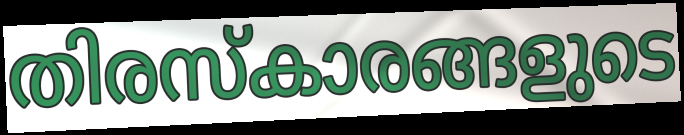
തിരസ്കാരങ്ങളുടെ